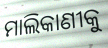
ମାଲିକାଣୀକୁ